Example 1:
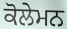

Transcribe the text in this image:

ਕੋਲੇਮਨ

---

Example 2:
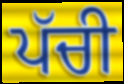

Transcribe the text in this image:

ਪੱਚੀ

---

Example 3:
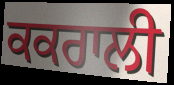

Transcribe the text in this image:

ਕਕਰਾਲੀ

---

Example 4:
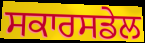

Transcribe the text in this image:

ਸਕਾਰਸਡੇਲ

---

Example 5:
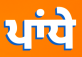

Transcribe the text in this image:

ਪਾਂਧੇ